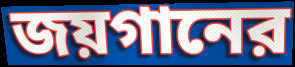
জয়গানের